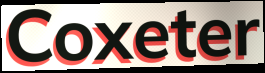
Coxeter